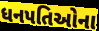
ધનપતિઓના